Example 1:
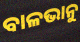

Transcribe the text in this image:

ବାଳଭାନୁ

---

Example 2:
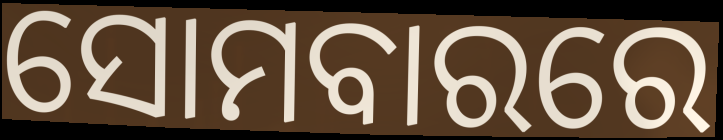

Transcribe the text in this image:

ସୋମବାରରେ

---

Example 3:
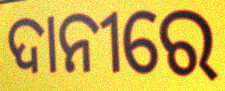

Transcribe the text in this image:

ଦାନୀରେ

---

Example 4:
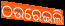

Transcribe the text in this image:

ଠଉରେଇଲି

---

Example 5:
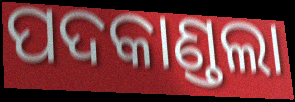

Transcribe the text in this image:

ପଦକାଣ୍ଡଲା